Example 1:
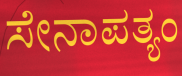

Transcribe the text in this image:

ಸೇನಾಪತ್ಯಂ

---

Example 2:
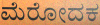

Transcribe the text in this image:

ಮೆರೋದಕ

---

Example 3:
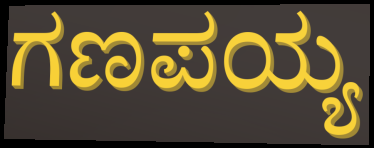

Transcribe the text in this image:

ಗಣಪಯ್ಯ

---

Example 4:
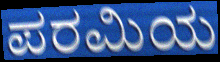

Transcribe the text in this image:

ಪರಮಿಯ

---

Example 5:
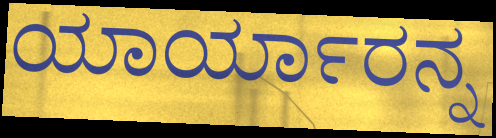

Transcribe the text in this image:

ಯಾರ್ಯಾರನ್ನ